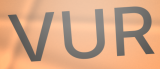
VUR